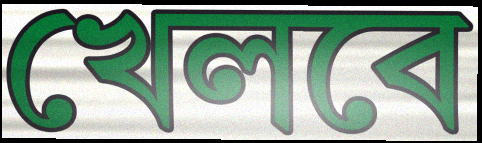
খেলবে